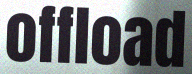
offload